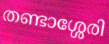
തണ്ടാശ്ശേരി